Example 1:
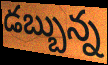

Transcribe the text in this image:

డబ్బున్న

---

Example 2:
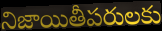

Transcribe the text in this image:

నిజాయితీపరులకు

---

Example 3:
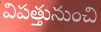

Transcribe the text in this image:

విపత్తునుంచి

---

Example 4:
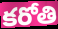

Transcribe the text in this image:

కరోతి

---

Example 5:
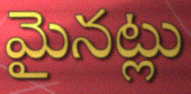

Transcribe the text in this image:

మైనట్లు